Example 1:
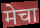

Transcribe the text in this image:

मेचा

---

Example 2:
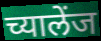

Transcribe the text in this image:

च्यालेंज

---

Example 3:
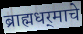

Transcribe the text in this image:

ब्राह्मधर्माचे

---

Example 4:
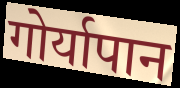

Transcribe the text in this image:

गोर्यापान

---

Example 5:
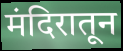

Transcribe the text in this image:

मंदिरातून